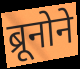
ब्रूनोने